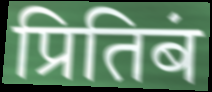
प्रितिबं